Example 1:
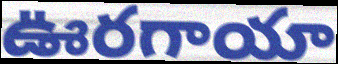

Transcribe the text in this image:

ఊరగాయా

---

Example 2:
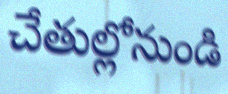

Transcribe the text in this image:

చేతుల్లోనుండి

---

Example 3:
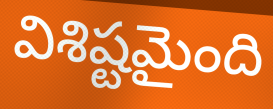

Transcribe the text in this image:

విశిష్టమైంది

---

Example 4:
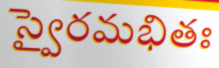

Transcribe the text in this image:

స్వైరమభితః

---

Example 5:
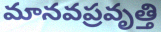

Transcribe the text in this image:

మానవప్రవృత్తి